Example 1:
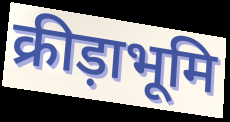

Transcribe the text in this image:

क्रीड़ाभूमि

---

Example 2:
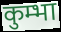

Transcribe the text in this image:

कुम्भा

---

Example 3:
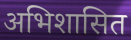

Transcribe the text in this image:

अभिशासित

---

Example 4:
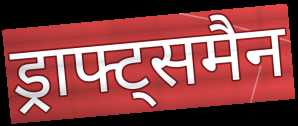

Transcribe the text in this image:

ड्राफ्ट्समैन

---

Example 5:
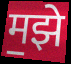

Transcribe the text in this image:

म॒झे